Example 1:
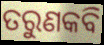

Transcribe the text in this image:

ତରୁଣକବି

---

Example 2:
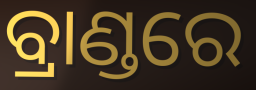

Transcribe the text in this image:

ବ୍ରାଣ୍ଡରେ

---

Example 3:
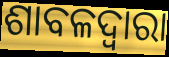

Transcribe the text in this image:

ଶାବଳଦ୍ୱାରା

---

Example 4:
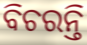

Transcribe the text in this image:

ବିଚରନ୍ତି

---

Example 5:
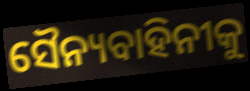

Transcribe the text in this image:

ସୈନ୍ୟବାହିନୀକୁ